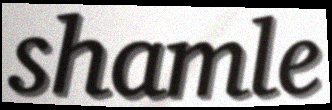
shamle